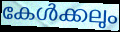
കേൾക്കലും